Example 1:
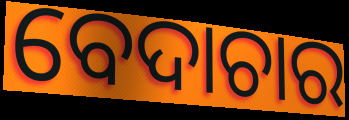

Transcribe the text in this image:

ବେଦାଚାର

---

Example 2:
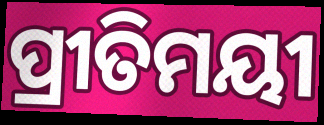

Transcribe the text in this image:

ପ୍ରୀତିମୟୀ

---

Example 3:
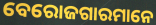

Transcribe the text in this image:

ବେରୋଜଗାରମାନେ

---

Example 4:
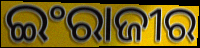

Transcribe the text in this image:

ଇଂରାଜୀର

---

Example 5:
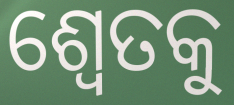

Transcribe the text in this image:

ଶ୍ଵେତକୁ